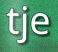
tje